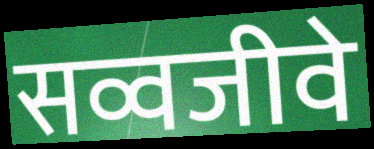
सव्वजीवे